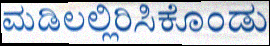
ಮಡಿಲಲ್ಲಿರಿಸಿಕೊಂಡು